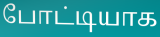
போட்டியாக